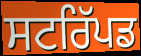
ਸਟਰਿੱਪਡ